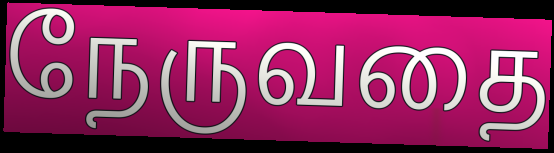
நேருவதை